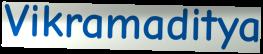
Vikramaditya